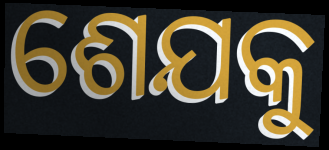
ଶେଯକୁ